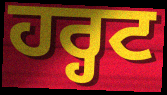
ਹਰ੍ਹਟ